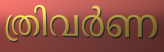
ത്രിവർണ